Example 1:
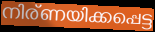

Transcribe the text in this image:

നിര്ണയിക്കപ്പെട്ട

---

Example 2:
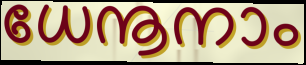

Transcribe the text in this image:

ധേനൂനാം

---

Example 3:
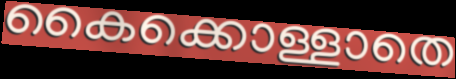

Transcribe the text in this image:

കൈക്കൊള്ളാതെ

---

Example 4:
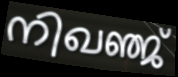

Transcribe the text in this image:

നിഖഞ്ജ്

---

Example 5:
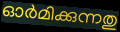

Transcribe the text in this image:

ഓർമിക്കുന്നതു